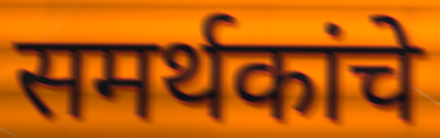
समर्थकांचे